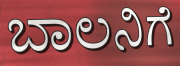
ಬಾಲನಿಗೆ